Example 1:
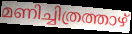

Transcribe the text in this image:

മണിച്ചിത്രത്താഴ്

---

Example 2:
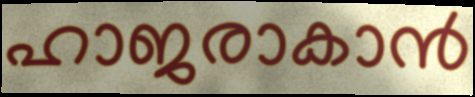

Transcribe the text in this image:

ഹാജരാകാൻ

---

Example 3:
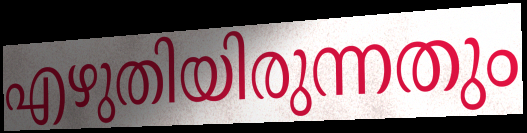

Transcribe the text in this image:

എഴുതിയിരുന്നതും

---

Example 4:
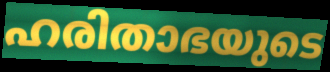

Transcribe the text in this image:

ഹരിതാഭയുടെ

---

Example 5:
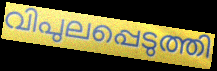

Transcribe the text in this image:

വിപുലപ്പെടുത്തി